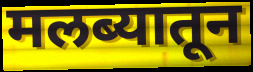
मलब्यातून